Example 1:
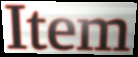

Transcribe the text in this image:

Item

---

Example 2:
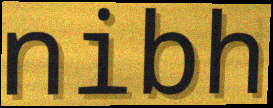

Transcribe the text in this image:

nibh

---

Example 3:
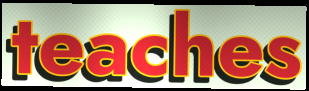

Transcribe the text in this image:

teaches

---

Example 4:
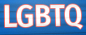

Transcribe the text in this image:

LGBTQ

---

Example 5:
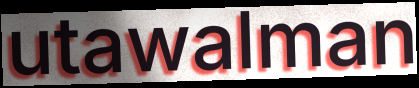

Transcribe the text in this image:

utawalman